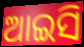
ଆଇସି